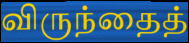
விருந்தைத்